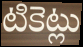
టికెట్లు